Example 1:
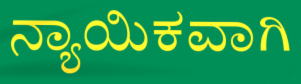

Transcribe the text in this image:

ನ್ಯಾಯಿಕವಾಗಿ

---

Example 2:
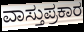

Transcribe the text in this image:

ವಾಸ್ತುಪ್ರಕಾರ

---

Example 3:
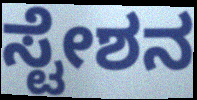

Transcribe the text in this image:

ಸ್ಟೇಶನ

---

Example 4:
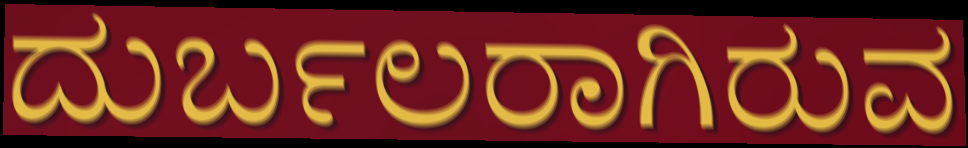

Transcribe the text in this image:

ದುರ್ಬಲರಾಗಿರುವ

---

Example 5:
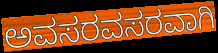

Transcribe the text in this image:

ಅವಸರವಸರವಾಗಿ